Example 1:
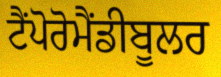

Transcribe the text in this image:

ਟੈਂਪੋਰੋਮੈਂਡੀਬੂਲਰ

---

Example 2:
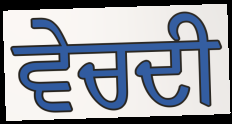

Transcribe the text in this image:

ਵੇਚਦੀ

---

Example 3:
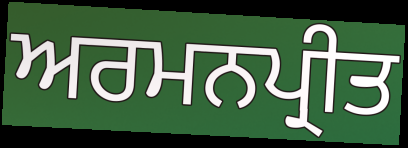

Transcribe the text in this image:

ਅਰਮਨਪ੍ਰੀਤ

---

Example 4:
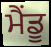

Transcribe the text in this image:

ਮੈਂਡੂ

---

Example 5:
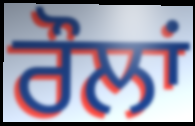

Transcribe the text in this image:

ਰੌਲਾਂ